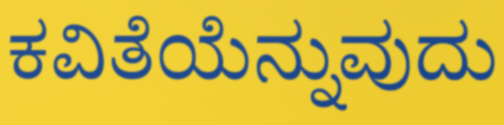
ಕವಿತೆಯೆನ್ನುವುದು